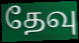
தேவு